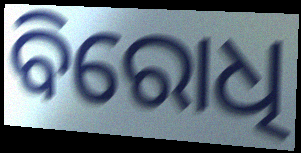
ବିରୋଧି